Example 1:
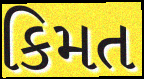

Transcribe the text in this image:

કિમત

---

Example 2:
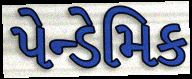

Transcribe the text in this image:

પેન્ડેમિક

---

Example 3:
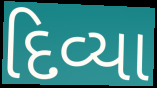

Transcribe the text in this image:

દિવ્યા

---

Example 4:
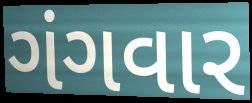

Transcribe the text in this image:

ગંગવાર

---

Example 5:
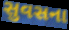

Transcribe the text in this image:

સુવસના